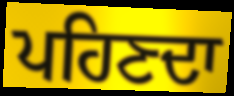
ਪਹਿਣਦਾ